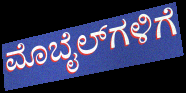
ಮೊಬೈಲ್‌ಗಳಿಗೆ